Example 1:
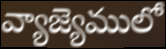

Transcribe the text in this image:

వ్యాజ్యెములో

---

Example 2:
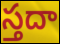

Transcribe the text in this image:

స్తదా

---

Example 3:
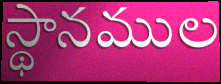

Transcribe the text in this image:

స్థానముల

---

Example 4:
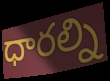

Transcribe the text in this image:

ధారల్ని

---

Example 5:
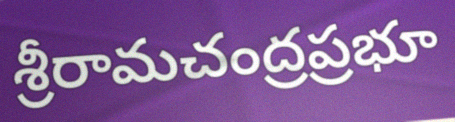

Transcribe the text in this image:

శ్రీరామచంద్రప్రభూ